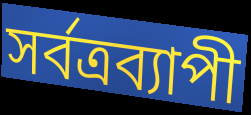
সর্বত্রব্যাপী